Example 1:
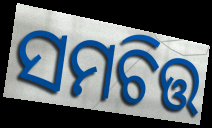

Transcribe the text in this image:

ସମଚିତ୍ତ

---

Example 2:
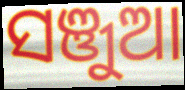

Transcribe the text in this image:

ସଞ୍ଜୁଆ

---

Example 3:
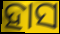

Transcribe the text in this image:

ହାସ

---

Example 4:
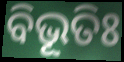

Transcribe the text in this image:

ବିଭୂତିଃ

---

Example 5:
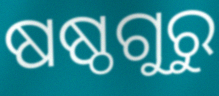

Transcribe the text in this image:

ଷଷ୍ଠଗୁରୁ